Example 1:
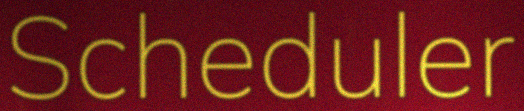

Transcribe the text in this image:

Scheduler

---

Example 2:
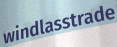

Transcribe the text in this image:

windlasstrade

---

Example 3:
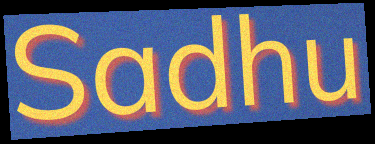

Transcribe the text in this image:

Sadhu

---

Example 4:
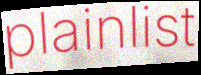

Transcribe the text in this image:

plainlist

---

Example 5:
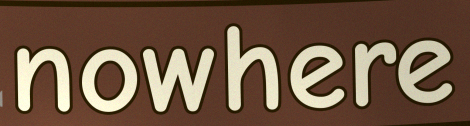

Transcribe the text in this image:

nowhere